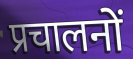
प्रचालनों